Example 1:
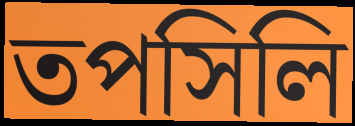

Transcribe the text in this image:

তপসিলি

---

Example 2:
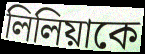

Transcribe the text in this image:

লিলিয়াকে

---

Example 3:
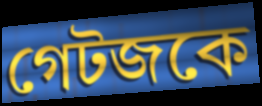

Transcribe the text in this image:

গেটজকে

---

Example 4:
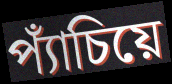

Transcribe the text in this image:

প্যাঁচিয়ে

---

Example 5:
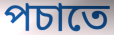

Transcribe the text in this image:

পচাতে